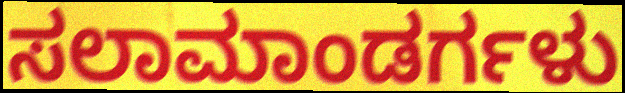
ಸಲಾಮಾಂಡರ್ಗಳು